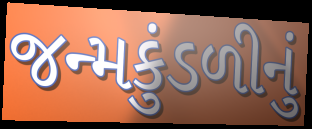
જન્મકુંડળીનું